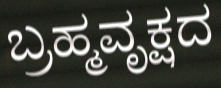
ಬ್ರಹ್ಮವೃಕ್ಷದ